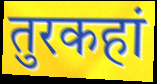
तुरकहां